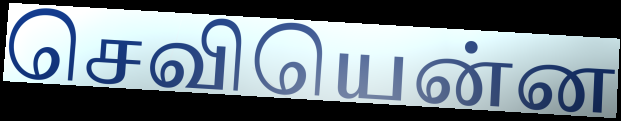
செவியென்ன